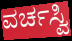
ವರ್ಚಸ್ವಿ